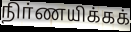
நிர்ணயிக்கக்